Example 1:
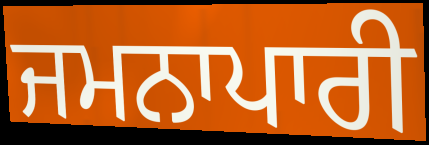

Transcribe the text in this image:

ਜਮਨਾਪਾਰੀ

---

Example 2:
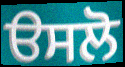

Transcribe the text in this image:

ੳਸਲੋ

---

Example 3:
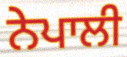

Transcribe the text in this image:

ਨੇਪਾਲੀ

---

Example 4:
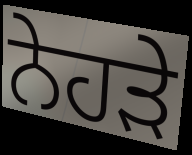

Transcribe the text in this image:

ਨੇਹੜੇ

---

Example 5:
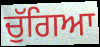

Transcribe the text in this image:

ਚੁੱਗਿਆ